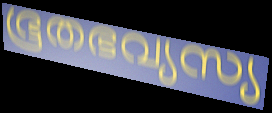
ഭൂതഭവ്യസ്യ